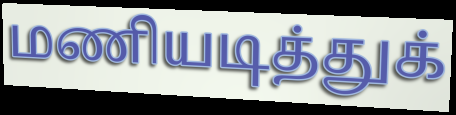
மணியடித்துக்